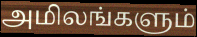
அமிலங்களும்